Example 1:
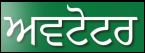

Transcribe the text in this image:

ਅਵਟੋਟਰ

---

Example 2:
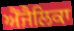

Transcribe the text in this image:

ਐਂਜੈਲਿਕਾ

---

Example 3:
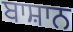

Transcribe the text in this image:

ਬਾਸ਼ਾਨ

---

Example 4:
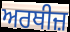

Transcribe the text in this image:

ਅਰਥੀਜ਼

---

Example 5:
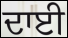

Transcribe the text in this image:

ਦਾਈ